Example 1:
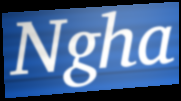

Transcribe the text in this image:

Ngha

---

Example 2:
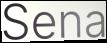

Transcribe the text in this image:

Sena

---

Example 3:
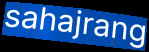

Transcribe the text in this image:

sahajrang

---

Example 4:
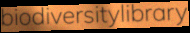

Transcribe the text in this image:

biodiversitylibrary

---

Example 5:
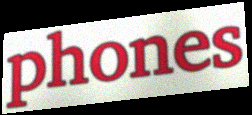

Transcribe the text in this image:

phones